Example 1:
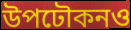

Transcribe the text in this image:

উপঢৌকনও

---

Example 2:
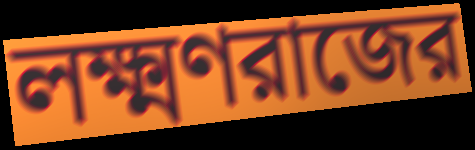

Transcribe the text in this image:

লক্ষ্মণরাজের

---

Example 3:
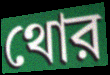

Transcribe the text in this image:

থোর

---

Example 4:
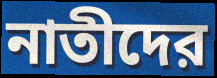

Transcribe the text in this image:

নাতীদের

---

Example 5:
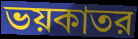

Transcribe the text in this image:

ভয়কাতর